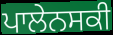
ਪਾਲੇਨਸਕੀ